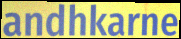
andhkarne